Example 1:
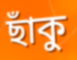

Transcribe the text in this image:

ছাঁকু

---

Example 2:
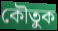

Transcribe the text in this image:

কৌতুক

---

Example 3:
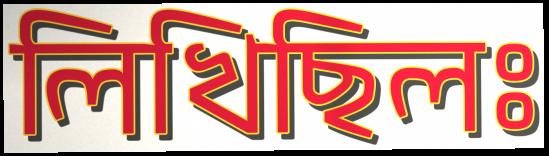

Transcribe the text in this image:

লিখিছিলঃ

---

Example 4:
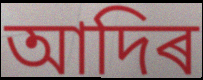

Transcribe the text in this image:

আদিৰ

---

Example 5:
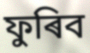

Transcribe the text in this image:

ফুৰিব